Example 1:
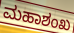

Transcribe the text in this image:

ಮಹಾಶಂಖ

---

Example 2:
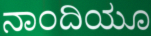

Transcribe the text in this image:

ನಾಂದಿಯೂ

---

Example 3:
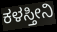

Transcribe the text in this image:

ಕಳಸ್ತೀನಿ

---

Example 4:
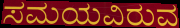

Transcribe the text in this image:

ಸಮಯವಿರುವ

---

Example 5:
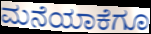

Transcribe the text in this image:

ಮನೆಯಾಕೆಗೂ